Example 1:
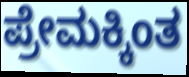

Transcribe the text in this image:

ಪ್ರೇಮಕ್ಕಿಂತ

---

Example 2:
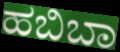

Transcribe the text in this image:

ಹಬಿಬಾ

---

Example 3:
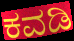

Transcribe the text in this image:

ಕವಡಿ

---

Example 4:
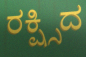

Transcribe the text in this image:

ರಕ್ಷ್ಸಿದ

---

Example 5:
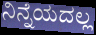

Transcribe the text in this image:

ನಿನ್ನೆಯದಲ್ಲ